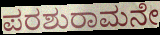
ಪರಶುರಾಮನೇ